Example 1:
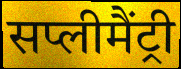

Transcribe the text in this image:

सप्लीमैंट्री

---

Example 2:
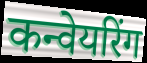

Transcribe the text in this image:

कन्वेयरिंग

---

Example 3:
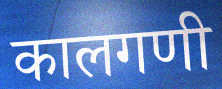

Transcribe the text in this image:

कालगणी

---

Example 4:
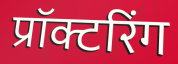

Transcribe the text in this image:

प्रॉक्टरिंग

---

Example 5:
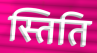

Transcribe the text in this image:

स्तिति